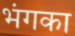
भंगका